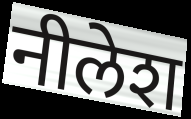
नीलेश